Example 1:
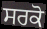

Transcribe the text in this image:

ਸਰਕੋ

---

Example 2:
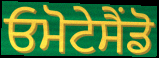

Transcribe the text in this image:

ਓਮੋਟੇਸੈਂਡੋ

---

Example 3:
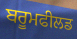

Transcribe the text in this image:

ਬਰੂਮਫੀਲਡ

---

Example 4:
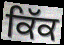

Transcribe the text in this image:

ਕਿੱਕ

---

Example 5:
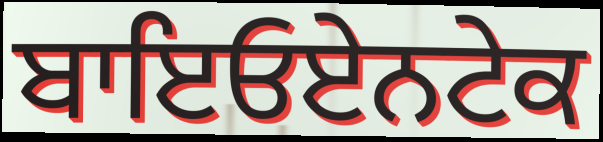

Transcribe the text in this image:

ਬਾਇਓਏਨਟੇਕ